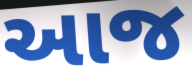
આજ